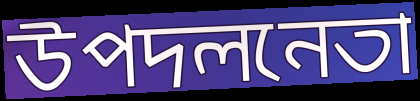
উপদলনেতা